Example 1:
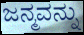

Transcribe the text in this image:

ಜನ್ಮವನ್ನು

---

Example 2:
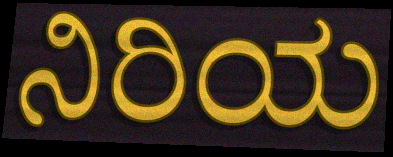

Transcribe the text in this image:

ನಿರಿಯ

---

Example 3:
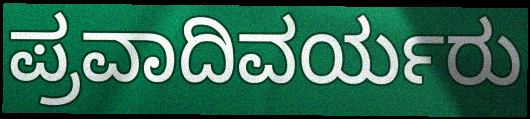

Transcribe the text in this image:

ಪ್ರವಾದಿವರ್ಯರು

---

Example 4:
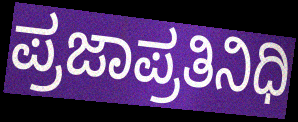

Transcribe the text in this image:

ಪ್ರಜಾಪ್ರತಿನಿಧಿ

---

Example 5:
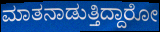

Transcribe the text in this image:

ಮಾತನಾಡುತ್ತಿದ್ದಾರೋ